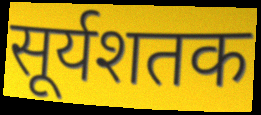
सूर्यशतक